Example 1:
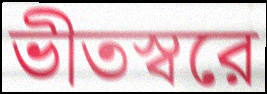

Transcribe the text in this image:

ভীতস্বরে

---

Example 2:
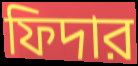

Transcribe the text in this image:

ফিদার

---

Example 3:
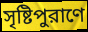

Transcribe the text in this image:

সৃষ্টিপুরাণে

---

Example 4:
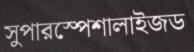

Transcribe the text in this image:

সুপারস্পেশালাইজড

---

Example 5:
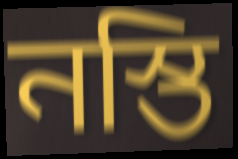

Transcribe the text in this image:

নস্তি